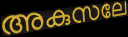
അകുസലേ